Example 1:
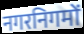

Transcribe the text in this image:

नगरनिगमों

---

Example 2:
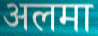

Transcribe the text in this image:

अलमा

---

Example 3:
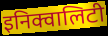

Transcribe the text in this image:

इनिक्वालिटी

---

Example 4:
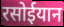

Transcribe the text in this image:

रसोईयान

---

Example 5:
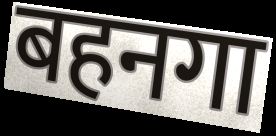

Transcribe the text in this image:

बहनगा